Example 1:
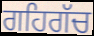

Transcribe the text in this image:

ਗਹਿਗੱਚ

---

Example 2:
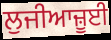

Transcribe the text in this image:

ਲੁਜੀਆਜ਼ੂਈ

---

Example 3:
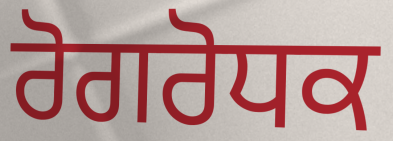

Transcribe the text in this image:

ਰੋਗਰੋਧਕ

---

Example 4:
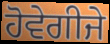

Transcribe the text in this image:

ਹੋਵੇਗੀਜੇ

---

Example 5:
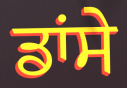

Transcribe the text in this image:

ਡਾਂਸੇ